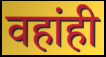
वहांही